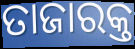
ତାଜାରକ୍ତ